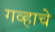
गव्हाचे